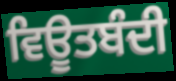
ਵਿਊਤਬੰਦੀ